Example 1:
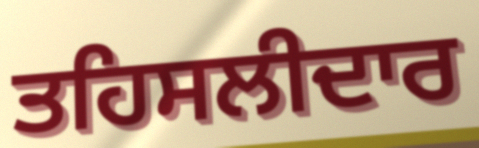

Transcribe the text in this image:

ਤਹਿਸਲੀਦਾਰ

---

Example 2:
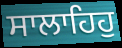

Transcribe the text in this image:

ਸਾਲਾਹਿਹੁ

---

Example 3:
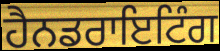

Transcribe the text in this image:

ਹੈਨਡਰਾਇਟਿੰਗ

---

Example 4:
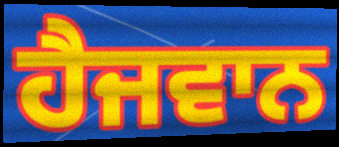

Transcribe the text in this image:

ਹੈਜਵਾਨ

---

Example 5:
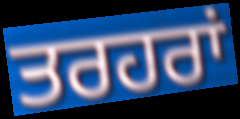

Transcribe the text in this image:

ਤਰਹਰਾਂ